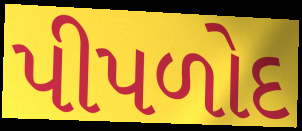
પીપળોદ